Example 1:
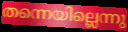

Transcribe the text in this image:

തന്നെയില്ലെന്നു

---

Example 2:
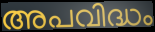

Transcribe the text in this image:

അപവിദ്ധം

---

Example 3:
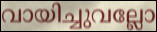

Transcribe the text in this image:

വായിച്ചുവല്ലോ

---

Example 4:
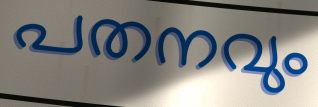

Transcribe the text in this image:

പതനവും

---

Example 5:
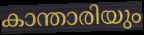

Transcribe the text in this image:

കാന്താരിയും